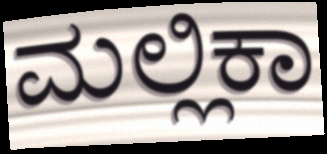
ಮಲ್ಲಿಕಾ